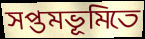
সপ্তমভূমিতে